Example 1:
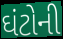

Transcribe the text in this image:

ઘંટોની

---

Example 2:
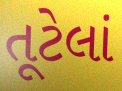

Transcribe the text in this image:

તૂટેલાં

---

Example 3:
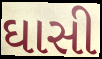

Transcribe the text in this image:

ઘાસી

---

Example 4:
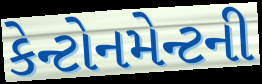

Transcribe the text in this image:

કેન્ટોનમેન્ટની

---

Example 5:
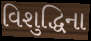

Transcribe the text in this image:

વિશુદ્ધિના